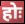
होः